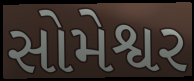
સોમેશ્વર